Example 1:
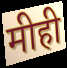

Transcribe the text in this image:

मीही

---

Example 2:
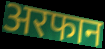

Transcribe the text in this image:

अरफान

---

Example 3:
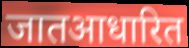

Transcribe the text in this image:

जातआधारित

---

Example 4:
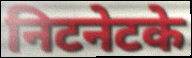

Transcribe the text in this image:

निटनेटके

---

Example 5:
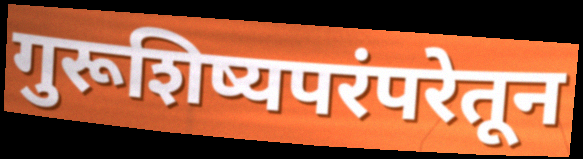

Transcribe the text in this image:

गुरूशिष्यपरंपरेतून